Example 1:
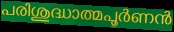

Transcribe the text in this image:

പരിശുദ്ധാത്മപൂർണൻ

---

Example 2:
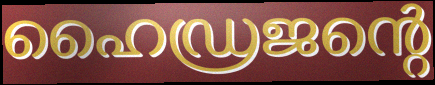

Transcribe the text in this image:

ഹൈഡ്രജന്റെ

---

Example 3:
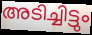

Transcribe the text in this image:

അടിച്ചിട്ടും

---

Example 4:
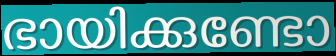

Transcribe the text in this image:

ഭായിക്കുണ്ടോ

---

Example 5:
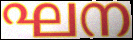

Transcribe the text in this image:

ഘന